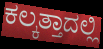
ಕಲ್ಕತ್ತಾದಲ್ಲಿ